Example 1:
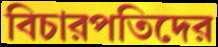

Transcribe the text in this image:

বিচারপতিদের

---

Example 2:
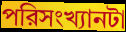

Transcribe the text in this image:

পরিসংখ্যানটা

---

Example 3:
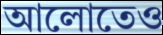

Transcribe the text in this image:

আলোতেও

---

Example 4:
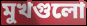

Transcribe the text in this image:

মুখগুলো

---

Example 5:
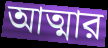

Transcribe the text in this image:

আত্মার